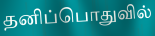
தனிப்பொதுவில்